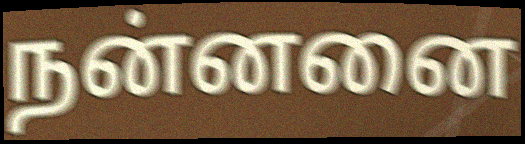
நன்னனை